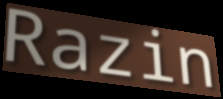
Razin